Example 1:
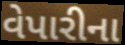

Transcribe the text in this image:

વેપારીના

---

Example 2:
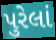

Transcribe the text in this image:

પુરેલાં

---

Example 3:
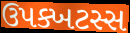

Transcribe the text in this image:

ઉપક્ખટસ્સ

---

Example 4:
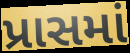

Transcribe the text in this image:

પ્રાસમાં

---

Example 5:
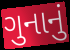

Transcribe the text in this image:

ગુનાનું